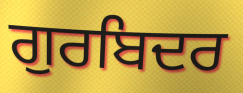
ਗੁਰਬਿਦਰ